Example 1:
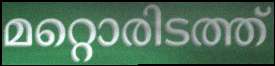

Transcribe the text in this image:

മറ്റൊരിടത്ത്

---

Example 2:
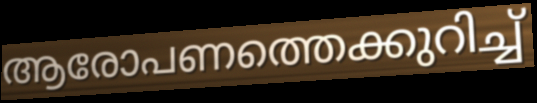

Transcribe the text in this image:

ആരോപണത്തെക്കുറിച്ച്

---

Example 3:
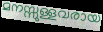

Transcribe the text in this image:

മനസ്സുള്ളവരായ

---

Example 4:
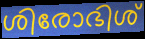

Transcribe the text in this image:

ശിരോഭിശ്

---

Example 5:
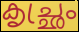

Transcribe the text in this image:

കൃച്ഛ്രം